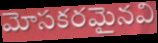
మోసకరమైనవి